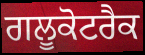
ਗਲੂਕੋਟਰੈਕ